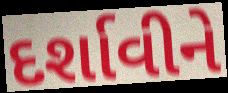
દર્શાવીને